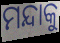
ମନ୍ଦାକୁ